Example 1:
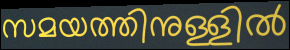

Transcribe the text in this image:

സമയത്തിനുള്ളിൽ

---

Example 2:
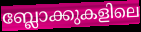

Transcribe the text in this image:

ബ്ലോക്കുകളിലെ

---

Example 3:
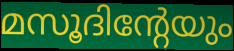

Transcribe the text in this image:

മസൂദിന്റേയും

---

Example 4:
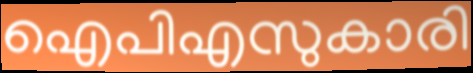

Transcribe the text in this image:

ഐപിഎസുകാരി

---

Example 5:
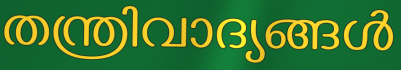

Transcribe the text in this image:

തന്ത്രിവാദ്യങ്ങൾ